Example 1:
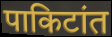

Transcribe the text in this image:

पाकिटांत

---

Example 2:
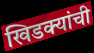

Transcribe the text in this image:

खिडक्यांची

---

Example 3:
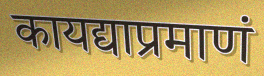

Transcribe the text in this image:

कायद्याप्रमाणं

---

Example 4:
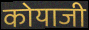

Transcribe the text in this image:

कोयाजी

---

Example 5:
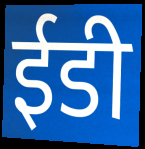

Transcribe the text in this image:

ईडी